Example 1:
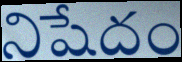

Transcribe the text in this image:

నిషేదం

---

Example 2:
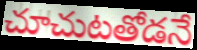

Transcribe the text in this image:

చూచుటతోడనే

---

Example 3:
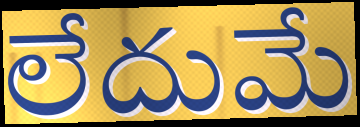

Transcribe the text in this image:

లేదుమే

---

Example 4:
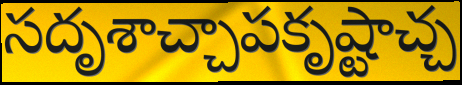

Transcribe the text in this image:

సదృశాచ్చాపకృష్టాచ్చ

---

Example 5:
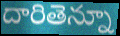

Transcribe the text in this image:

దారితెన్నూ